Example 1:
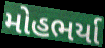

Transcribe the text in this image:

મોહભર્યા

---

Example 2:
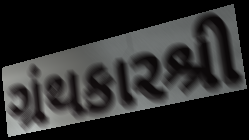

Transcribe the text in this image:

ગ્રંથકારશ્રી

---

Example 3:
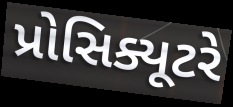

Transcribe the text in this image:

પ્રોસિક્યૂટરે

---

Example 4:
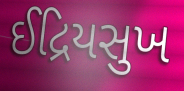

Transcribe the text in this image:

ઈદ્રિયસુખ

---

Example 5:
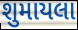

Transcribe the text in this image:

શુમાયલા